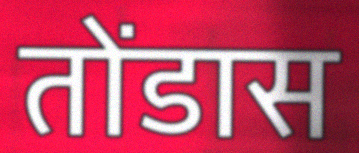
तोंडास